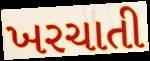
ખરચાતી